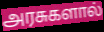
அரசுகளால்